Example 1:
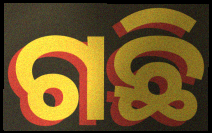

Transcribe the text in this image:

ଗଛି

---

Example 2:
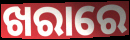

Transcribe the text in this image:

ଖରାରେ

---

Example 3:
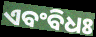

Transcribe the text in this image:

ଏବଂବିଧଃ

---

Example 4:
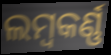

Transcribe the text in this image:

ଲମ୍ୱକର୍ଣ୍ଣ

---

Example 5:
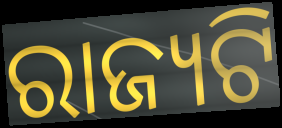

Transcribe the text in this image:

ରାଜ୍ୟଟି